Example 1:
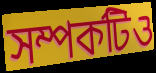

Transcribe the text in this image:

সম্পর্কটিও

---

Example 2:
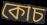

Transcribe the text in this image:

কোচ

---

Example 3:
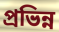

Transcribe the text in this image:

প্রভিন্ন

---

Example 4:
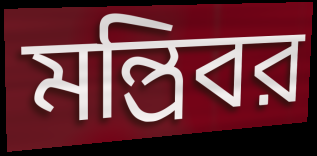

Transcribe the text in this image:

মন্ত্রিবর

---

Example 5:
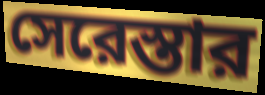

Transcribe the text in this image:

সেরেস্তার